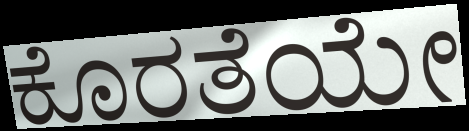
ಕೊರತೆಯೇ